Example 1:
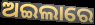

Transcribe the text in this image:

ଅଇଲାରେ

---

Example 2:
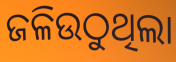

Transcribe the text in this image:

ଜଳିଉଠୁଥିଲା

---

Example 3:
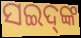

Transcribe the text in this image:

ସଇଦ୍‌ଙ୍କ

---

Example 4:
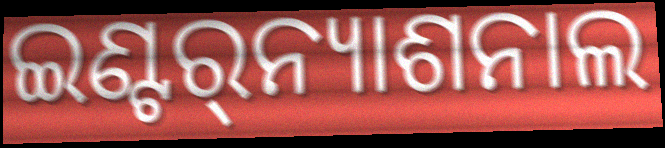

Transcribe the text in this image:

ଇଣ୍ଟର୍‌ନ୍ୟାଶନାଲ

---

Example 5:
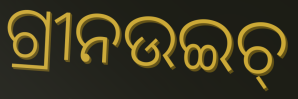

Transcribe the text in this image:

ଗ୍ରୀନଉଇଚ୍